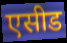
एसीड